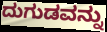
ದುಗುಡವನ್ನು